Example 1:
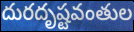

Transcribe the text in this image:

దురదృష్టవంతుల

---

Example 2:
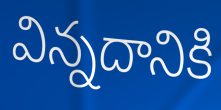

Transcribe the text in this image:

విన్నదానికి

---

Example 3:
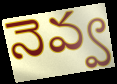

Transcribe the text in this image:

నెవ్వ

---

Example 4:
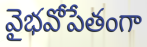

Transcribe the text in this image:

వైభవోపేతంగా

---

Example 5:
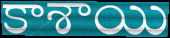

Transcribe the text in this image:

కాశాయి